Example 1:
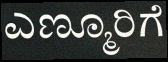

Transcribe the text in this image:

ಎಣ್ಮೂರಿಗೆ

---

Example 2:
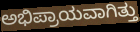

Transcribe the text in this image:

ಅಭಿಪ್ರಾಯವಾಗಿತ್ತು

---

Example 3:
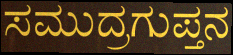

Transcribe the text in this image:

ಸಮುದ್ರಗುಪ್ತನ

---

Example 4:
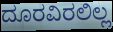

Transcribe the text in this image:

ದೂರವಿರಲಿಲ್ಲ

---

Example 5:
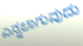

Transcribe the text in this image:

ಎನ್ನಲಾಗುವುದು